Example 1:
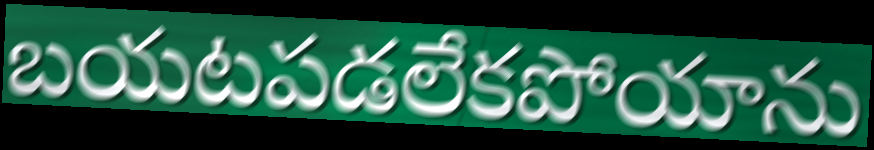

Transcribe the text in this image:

బయటపడలేకపోయాను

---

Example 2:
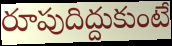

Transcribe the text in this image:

రూపుదిద్దుకుంటే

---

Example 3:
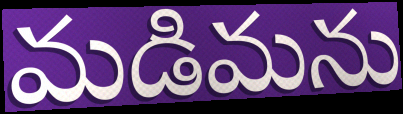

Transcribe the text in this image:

మడిమను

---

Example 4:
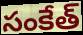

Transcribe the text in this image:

సంకేత్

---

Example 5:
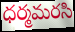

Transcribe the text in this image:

ధర్మమరసి